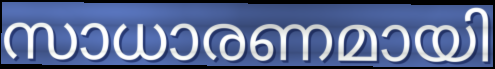
സാധാരണമായി